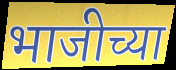
भाजीच्या